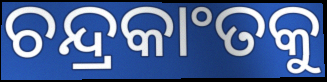
ଚନ୍ଦ୍ରକାଂତକୁ